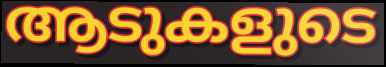
ആടുകളുടെ